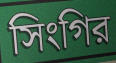
সিংগির